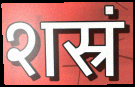
शस्रं